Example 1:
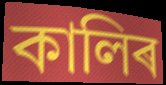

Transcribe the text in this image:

কালিৰ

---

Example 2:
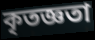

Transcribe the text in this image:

কৃতজ্ঞতা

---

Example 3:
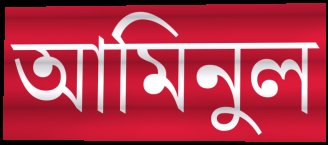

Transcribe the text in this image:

আমিনুল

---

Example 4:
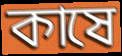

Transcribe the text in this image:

কাষে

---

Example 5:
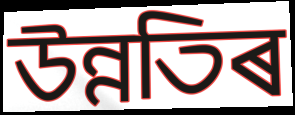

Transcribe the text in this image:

উন্নতিৰ